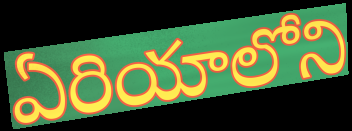
ఏరియాలోని